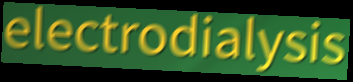
electrodialysis